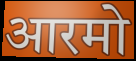
आरमो